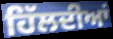
ਹਿੱਲਦੀਆਂ